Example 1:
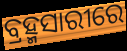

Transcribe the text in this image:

ବ୍ରହ୍ମସାରୀରେ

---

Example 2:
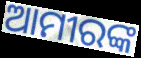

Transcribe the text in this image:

ଆମୀରଙ୍କ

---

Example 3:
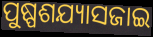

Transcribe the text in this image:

ପୁଷ୍ପଶଯ୍ୟାସଜାଇ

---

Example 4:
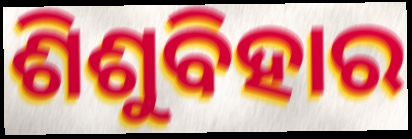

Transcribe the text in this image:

ଶିଶୁବିହାର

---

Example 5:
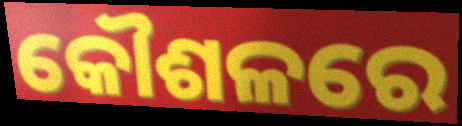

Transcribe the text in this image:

କୌଶଳରେ